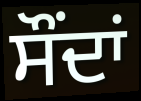
ਸੌਂਦਾਂ